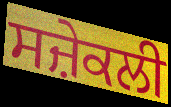
ਸਜ਼ੇਕਲੀ